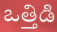
ఒత్తిడి